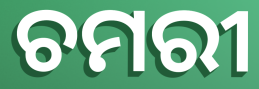
ଚମରୀ